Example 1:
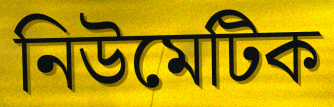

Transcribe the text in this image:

নিউমেটিক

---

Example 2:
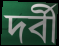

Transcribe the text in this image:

দর্বী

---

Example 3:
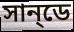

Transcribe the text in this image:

সান্‌ডে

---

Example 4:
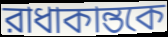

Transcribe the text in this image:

রাধাকান্তকে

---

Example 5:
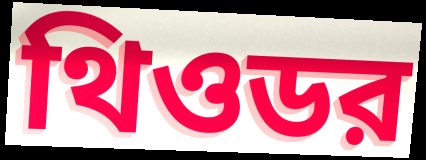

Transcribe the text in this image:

থিওডর